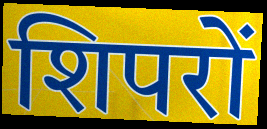
शिपरों